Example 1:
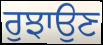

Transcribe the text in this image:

ਰੁਝਾਉਣ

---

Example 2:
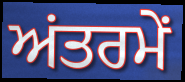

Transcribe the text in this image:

ਅਂਤਰਮੇਂ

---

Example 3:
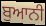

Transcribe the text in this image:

ਬੁਆਨੀ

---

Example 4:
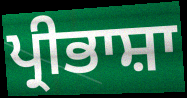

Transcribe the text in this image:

ਪ੍ਰੀਭਾਸ਼ਾ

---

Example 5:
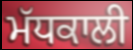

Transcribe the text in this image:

ਮੱਧਕਾਲੀ